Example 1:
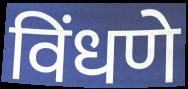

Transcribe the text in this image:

विंधणे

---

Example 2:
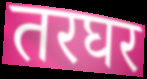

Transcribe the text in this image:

तरघर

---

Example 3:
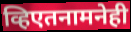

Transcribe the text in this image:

व्हिएतनामनेही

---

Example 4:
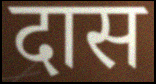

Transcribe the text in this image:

दास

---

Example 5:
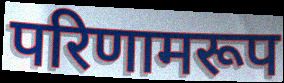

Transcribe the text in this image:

परिणामरूप